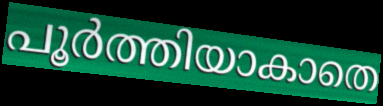
പൂർത്തിയാകാതെ